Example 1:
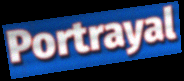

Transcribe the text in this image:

Portrayal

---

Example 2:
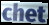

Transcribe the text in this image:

chet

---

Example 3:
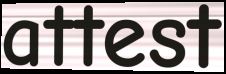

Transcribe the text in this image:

attest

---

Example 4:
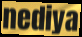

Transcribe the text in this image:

nediya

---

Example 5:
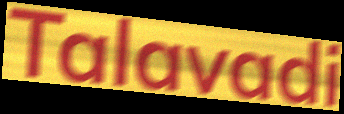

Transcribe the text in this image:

Talavadi